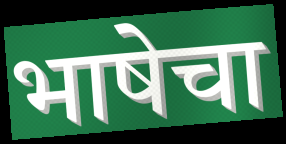
भाषेचा